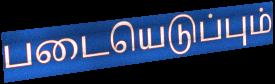
படையெடுப்பும்